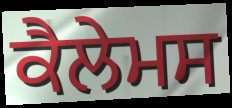
ਕੈਲੇਮਸ